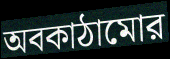
অবকাঠামোর